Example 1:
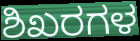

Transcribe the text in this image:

ಶಿಖರಗಳ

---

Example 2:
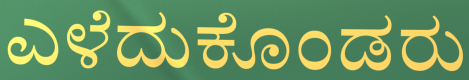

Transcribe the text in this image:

ಎಳೆದುಕೊಂಡರು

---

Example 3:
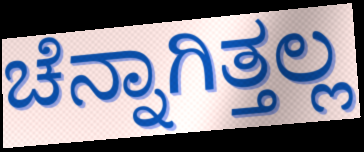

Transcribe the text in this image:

ಚೆನ್ನಾಗಿತ್ತಲ್ಲ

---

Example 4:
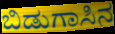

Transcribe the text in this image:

ಬಿಡುಗಾಸಿನ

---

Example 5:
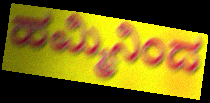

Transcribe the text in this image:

ಹಮ್ಮಿನಿಂದ